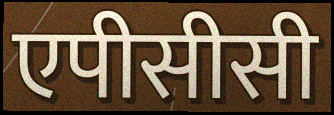
एपीसीसी